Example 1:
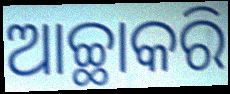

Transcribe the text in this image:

ଆଚ୍ଛାକରି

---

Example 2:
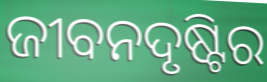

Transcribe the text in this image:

ଜୀବନଦୃଷ୍ଟିର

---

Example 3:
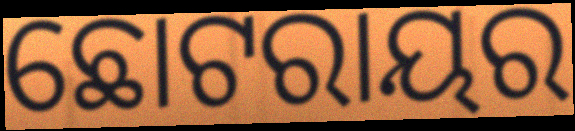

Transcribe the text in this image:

ଛୋଟରାୟର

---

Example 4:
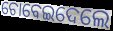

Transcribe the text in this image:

ଚୋବେଇଦେଲେ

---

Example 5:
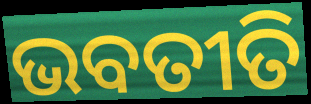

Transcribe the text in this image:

ଭବତୀତି